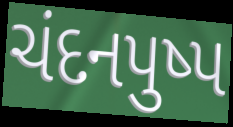
ચંદનપુષ્પ